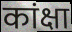
कांक्षा